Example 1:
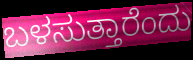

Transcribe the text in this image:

ಬಳಸುತ್ತಾರೆಂದು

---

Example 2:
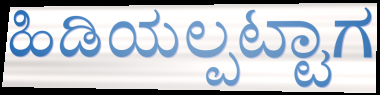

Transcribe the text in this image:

ಹಿಡಿಯಲ್ಪಟ್ಟಾಗ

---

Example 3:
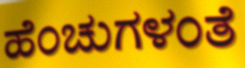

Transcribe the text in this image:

ಹೆಂಚುಗಳಂತೆ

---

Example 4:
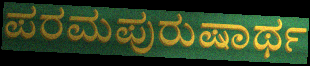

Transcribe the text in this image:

ಪರಮಪುರುಷಾರ್ಥ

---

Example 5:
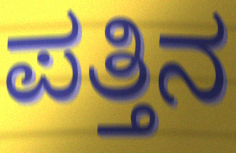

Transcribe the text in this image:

ಪತ್ತಿನ